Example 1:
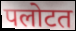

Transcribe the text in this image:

पलोटत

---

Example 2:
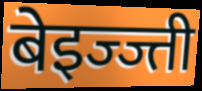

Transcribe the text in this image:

बेइज्ज्ती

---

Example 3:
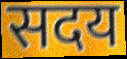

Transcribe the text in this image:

सदय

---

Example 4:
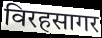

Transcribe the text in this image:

विरहसागर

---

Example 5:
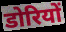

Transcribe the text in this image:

डोरियों